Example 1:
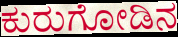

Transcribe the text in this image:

ಕುರುಗೋಡಿನ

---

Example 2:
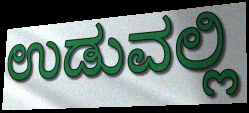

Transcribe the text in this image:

ಉಡುವಲ್ಲಿ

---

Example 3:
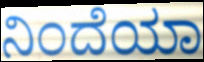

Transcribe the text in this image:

ನಿಂದೆಯಾ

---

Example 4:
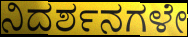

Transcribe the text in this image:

ನಿದರ್ಶನಗಳೇ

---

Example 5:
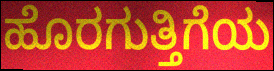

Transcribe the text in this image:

ಹೊರಗುತ್ತಿಗೆಯ